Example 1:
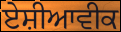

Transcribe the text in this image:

ਏਸ਼ੀਆਵੀਕ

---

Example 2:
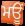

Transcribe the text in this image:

ਮਊਂ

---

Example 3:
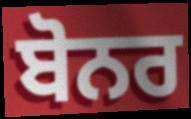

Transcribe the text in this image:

ਬੋਨਰ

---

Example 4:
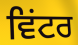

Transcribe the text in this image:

ਵਿਂਟਰ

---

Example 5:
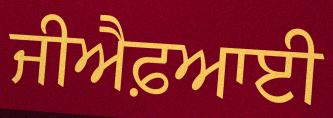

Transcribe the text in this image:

ਜੀਐਫ਼ਆਈ